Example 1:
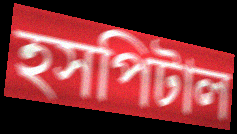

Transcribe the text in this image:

হসপিটাল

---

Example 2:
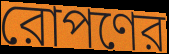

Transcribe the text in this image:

রোপণের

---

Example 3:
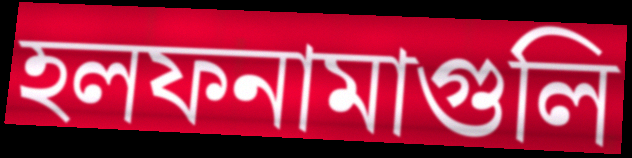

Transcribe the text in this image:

হলফনামাগুলি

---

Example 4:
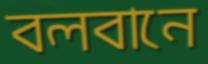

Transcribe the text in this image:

বলবানে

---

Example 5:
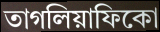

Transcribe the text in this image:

তাগলিয়াফিকো